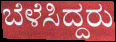
ಬೆಳೆಸಿದ್ದರು